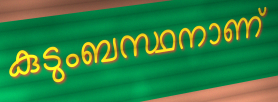
കുടുംബസ്ഥനാണ്